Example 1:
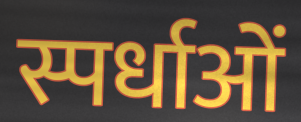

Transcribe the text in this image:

स्‍पर्धाओं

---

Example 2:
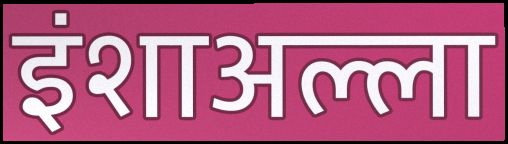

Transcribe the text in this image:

इंशाअल्ला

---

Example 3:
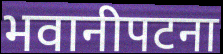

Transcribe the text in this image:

भवानीपटना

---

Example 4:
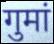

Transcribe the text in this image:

गुमां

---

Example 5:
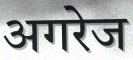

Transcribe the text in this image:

अगरेज